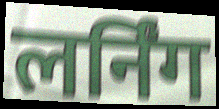
लर्निंग